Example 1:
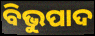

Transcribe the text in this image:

ବିଭୁପାଦ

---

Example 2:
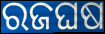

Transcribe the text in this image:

ରଜଘଷ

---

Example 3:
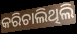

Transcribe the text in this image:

କରିଚାଲିଥିଲି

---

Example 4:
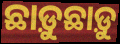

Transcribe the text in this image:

ଛାଡ଼ୁଛାଡ଼ୁ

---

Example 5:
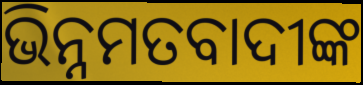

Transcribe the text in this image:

ଭିନ୍ନମତବାଦୀଙ୍କ